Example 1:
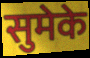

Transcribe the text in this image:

सुमेके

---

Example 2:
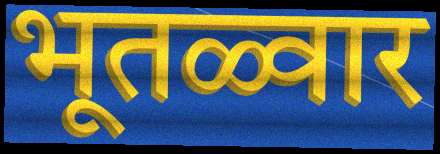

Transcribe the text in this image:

भूतळ्वार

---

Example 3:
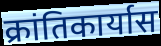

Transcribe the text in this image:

क्रांतिकार्यास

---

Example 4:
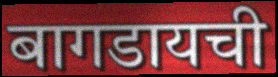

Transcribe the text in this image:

बागडायची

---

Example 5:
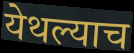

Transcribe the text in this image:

येथल्याच